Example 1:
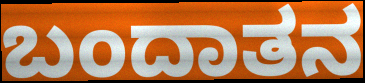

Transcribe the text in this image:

ಬಂದಾತನ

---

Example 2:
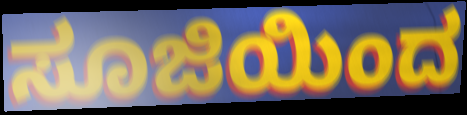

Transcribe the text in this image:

ಸೂಜಿಯಿಂದ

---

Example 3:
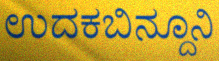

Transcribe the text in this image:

ಉದಕಬಿನ್ದೂನಿ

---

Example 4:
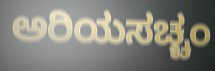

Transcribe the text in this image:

ಅರಿಯಸಚ್ಚಂ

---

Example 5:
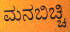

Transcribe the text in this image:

ಮನಬಿಚ್ಚಿ